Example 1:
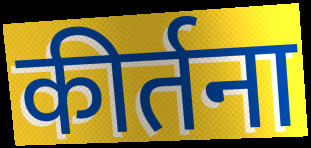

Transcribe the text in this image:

कीर्तना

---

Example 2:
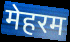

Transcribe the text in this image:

मेहरम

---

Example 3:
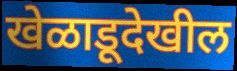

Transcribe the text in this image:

खेळाडूदेखील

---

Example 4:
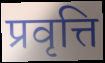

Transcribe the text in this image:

प्रवृत्ति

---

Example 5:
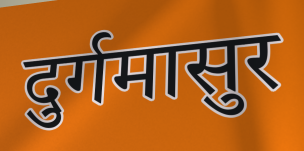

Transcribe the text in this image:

दुर्गमासुर